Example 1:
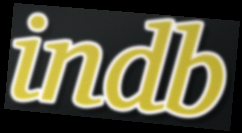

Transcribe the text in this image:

indb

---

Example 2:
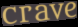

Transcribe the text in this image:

crave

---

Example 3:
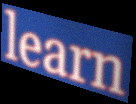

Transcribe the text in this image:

learn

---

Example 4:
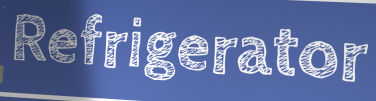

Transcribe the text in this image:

Refrigerator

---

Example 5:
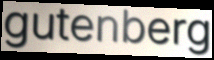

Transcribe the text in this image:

gutenberg